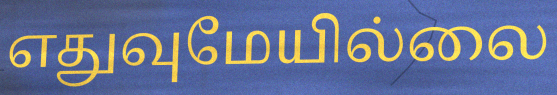
எதுவுமேயில்லை